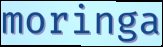
moringa